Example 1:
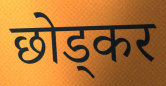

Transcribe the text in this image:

छोड्कर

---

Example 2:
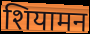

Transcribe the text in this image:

शियामन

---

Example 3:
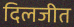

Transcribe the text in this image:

दिलजीत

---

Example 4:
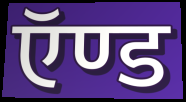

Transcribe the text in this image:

ऍण्ड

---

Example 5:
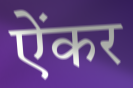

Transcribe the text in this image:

ऐंकर